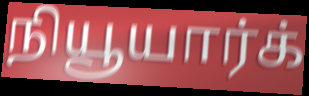
நியூயார்க்